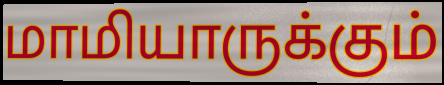
மாமியாருக்கும்